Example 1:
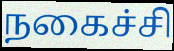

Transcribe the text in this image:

நகைச்சி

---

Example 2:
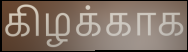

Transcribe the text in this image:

கிழக்காக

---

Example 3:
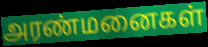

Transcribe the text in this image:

அரண்மனைகள்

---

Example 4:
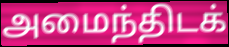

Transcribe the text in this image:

அமைந்திடக்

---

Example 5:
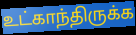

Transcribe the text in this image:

உட்காந்திருக்க